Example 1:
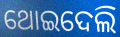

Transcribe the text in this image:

ଥୋଇଦେଲି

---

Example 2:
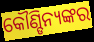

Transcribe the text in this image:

କୌଣ୍ଡିନ୍ୟଙ୍କର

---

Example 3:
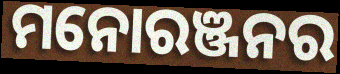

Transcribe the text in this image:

ମନୋରଞ୍ଜନର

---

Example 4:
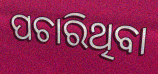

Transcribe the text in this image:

ପଚାରିଥିବା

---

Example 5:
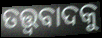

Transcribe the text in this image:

ତତ୍ତ୍ୱବାଦକୁ